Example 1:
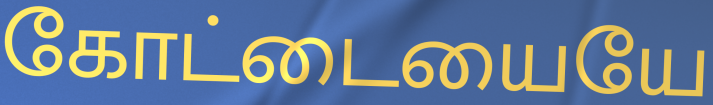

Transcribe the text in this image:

கோட்டையையே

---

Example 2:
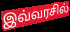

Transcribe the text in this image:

இவ்வரசில்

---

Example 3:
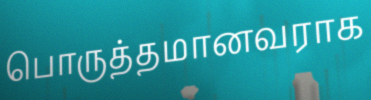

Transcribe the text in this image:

பொருத்தமானவராக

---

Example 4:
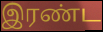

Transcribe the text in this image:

இரண்ட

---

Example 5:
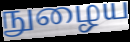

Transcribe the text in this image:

நுழைய